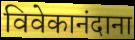
विवेकानंदाना